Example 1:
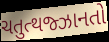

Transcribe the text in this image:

ચતુત્થજ્ઝાનતો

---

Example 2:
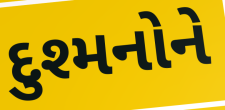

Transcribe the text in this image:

દુશ્મનોને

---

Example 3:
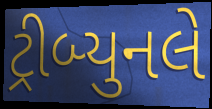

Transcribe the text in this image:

ટ્રીબ્યુનલે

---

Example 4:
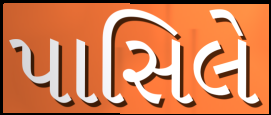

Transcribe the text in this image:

પાસિલે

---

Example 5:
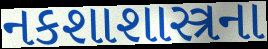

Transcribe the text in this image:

નકશાશાસ્ત્રના